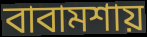
বাবামশায়